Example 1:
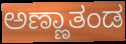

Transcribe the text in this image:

ಅಣ್ಣಾತಂಡ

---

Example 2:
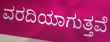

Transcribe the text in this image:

ವರದಿಯಾಗುತ್ತವೆ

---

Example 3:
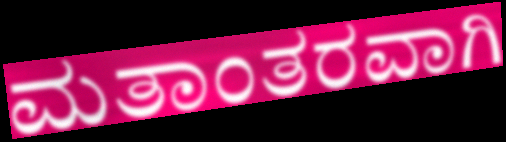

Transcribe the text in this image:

ಮತಾಂತರವಾಗಿ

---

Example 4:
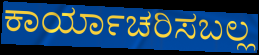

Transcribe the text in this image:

ಕಾರ್ಯಾಚರಿಸಬಲ್ಲ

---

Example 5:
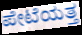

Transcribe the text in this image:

ಪೇಟೆಯತ್ತ